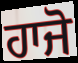
ਹਾਜੋ